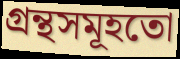
গ্ৰন্থসমূহতো